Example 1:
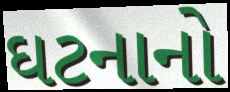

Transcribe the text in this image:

ઘટનાનો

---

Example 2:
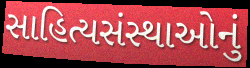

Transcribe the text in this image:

સાહિત્યસંસ્થાઓનું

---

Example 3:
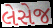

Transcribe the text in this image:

લેસેજ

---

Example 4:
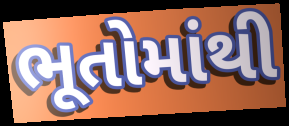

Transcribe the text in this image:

ભૂતોમાંથી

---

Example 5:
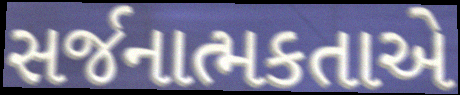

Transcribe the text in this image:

સર્જનાત્મકતાએ